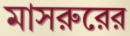
মাসরুরের